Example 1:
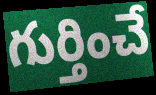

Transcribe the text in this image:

గుర్తించే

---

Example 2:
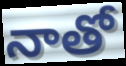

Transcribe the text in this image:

నాతో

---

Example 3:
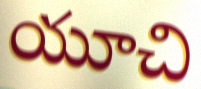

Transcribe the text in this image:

యూచి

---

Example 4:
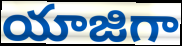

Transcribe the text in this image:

యాజిగా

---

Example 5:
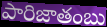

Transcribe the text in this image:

పారిజాతంబు